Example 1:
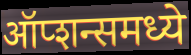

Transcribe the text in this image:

ऑप्शन्समध्ये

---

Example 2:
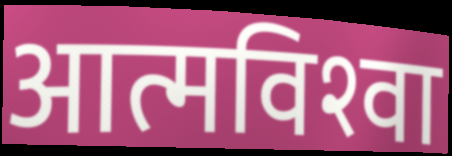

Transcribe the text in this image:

आत्मविश्वा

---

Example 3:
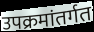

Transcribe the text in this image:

उपक्रमांतर्गत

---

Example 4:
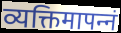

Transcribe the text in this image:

व्यक्तिमापन्नं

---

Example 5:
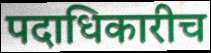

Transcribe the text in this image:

पदाधिकारीच